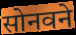
सोनवने